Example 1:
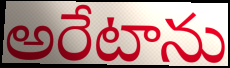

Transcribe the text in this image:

అరేటాను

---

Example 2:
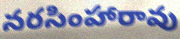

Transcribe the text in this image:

నరసింహారావు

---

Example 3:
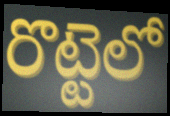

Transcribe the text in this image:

రొట్టెలో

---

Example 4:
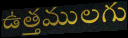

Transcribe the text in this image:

ఉత్తములగు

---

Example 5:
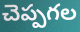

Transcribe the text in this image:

చెప్పగల